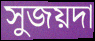
সুজয়দা